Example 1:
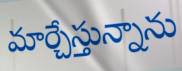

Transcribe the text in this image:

మార్చేస్తున్నాను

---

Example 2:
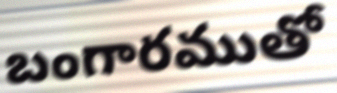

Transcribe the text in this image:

బంగారముతో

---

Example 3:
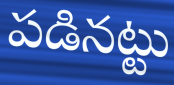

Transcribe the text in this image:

పడినట్టు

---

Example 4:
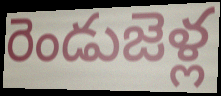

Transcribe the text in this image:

రెండుజెళ్ల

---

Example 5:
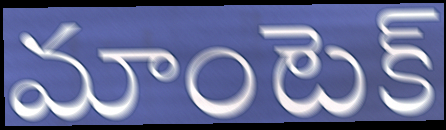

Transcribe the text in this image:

మాంటెక్